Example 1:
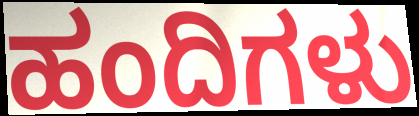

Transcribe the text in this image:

ಹಂದಿಗಳು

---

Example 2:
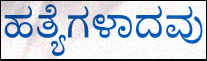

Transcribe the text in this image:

ಹತ್ಯೆಗಳಾದವು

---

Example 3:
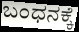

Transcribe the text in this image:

ಬಂಧನಕ್ಕೆ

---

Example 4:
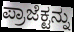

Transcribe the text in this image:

ಪ್ರಾಜೆಕ್ಟನ್ನು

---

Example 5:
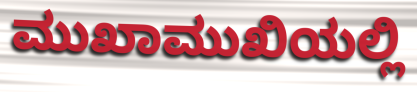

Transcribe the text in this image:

ಮುಖಾಮುಖಿಯಲ್ಲಿ